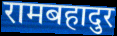
रामबहादुर